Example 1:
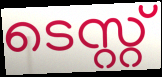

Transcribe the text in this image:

ടെസ്റ്റ്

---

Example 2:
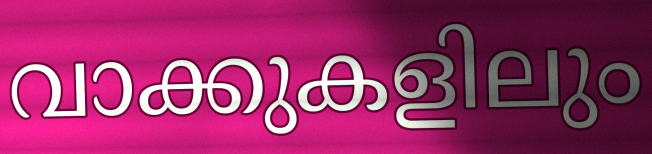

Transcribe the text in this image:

വാക്കുകളിലും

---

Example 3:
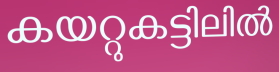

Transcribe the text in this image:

കയറ്റുകട്ടിലിൽ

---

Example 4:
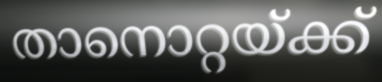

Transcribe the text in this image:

താനൊറ്റയ്ക്ക്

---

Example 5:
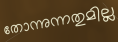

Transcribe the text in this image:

തോന്നുന്നതുമില്ല